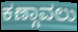
ಕಣ್ಗಾವಲು